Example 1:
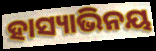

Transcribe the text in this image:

ହାସ୍ୟାଭିନୟ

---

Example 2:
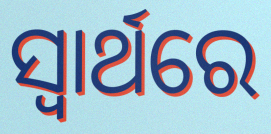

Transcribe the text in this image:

ସ୍ବାର୍ଥରେ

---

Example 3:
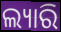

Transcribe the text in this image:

ଲ୍ୟାରି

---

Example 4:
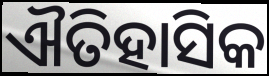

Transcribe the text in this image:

ଐତିହାସିକ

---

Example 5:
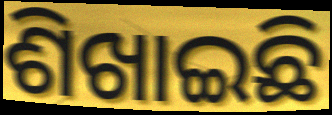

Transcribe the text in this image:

ଶିଖାଇଛି